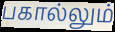
பகால்லும்